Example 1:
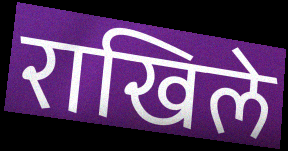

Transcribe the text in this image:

राखिले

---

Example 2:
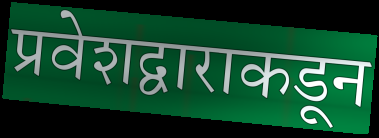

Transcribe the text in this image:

प्रवेशद्वाराकडून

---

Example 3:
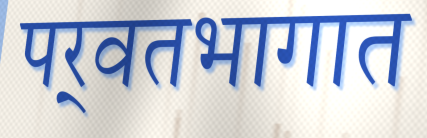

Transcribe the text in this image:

पर्वतभागात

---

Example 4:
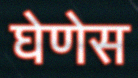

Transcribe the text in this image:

घेणेस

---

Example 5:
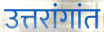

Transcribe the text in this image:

उत्तरांगांत